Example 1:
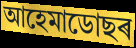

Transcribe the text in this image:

আহেমাডোছৰ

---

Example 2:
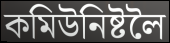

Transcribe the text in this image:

কমিউনিষ্টলৈ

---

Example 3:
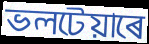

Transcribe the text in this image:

ভলটেয়াৰে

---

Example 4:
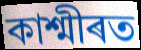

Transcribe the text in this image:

কাশ্মীৰত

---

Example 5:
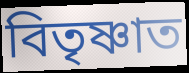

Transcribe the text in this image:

বিতৃষ্ণাত